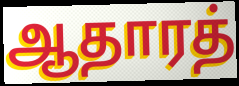
ஆதாரத்